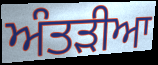
ਅੰਤੜੀਆ